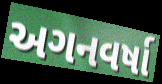
અગનવર્ષા